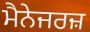
ਮੈਨੇਜਰਜ਼